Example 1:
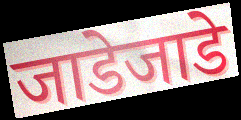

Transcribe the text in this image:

जाडेजाडे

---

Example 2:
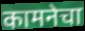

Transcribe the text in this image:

कामनेचा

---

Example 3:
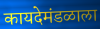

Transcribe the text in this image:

कायदेमंडळाला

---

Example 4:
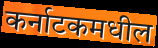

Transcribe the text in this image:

कर्नाटकमधील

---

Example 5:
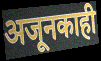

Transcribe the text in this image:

अजूनकाही